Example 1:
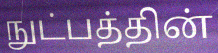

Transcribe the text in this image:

நுட்பத்தின்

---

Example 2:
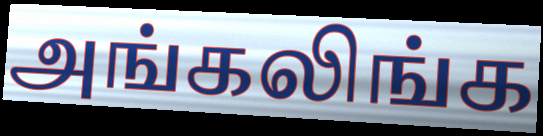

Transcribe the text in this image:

அங்கலிங்க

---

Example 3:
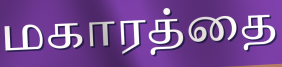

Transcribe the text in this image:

மகாரத்தை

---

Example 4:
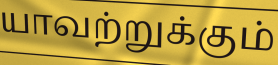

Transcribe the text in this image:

யாவற்றுக்கும்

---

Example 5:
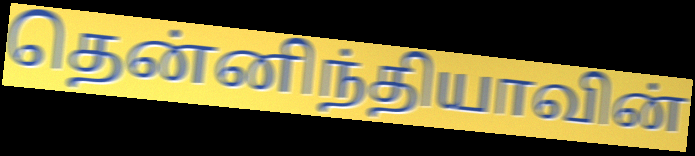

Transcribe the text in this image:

தென்னிந்தியாவின்